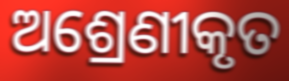
ଅଶ୍ରେଣୀକୃତ